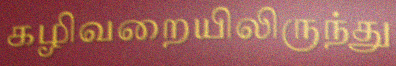
கழிவறையிலிருந்து